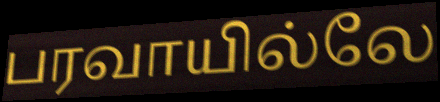
பரவாயில்லே